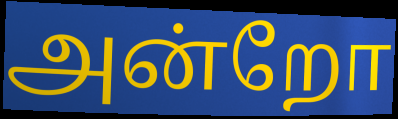
அன்றோ